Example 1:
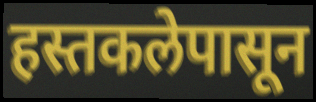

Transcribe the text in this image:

हस्तकलेपासून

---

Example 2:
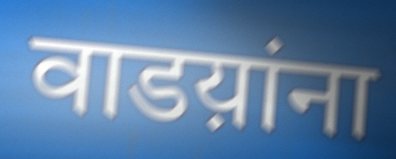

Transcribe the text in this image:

वाडय़ांना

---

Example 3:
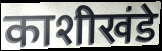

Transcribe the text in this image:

काशीखंडे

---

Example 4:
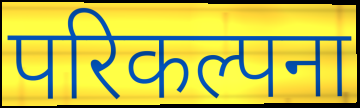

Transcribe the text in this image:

परिकल्पना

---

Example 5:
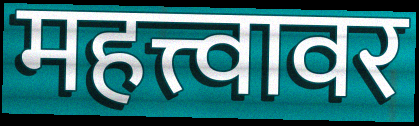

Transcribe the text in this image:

महत्त्वावर